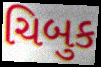
ચિબુક